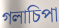
গলাচিপা